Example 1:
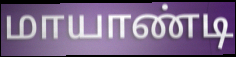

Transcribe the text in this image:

மாயாண்டி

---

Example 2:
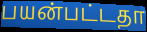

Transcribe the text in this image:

பயன்பட்டதா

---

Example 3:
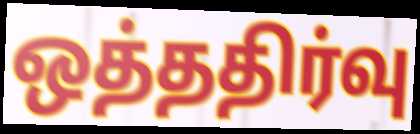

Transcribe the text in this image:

ஒத்ததிர்வு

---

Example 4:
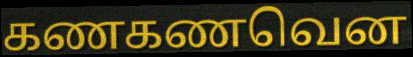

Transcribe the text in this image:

கணகணவென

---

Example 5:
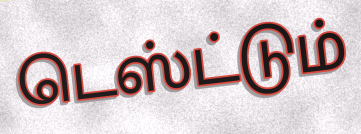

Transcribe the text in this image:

டெஸ்ட்டும்